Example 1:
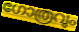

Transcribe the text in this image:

ഗോത്രവും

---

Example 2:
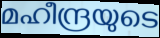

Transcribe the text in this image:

മഹീന്ദ്രയുടെ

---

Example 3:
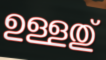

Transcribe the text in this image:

ഉള്ളതു്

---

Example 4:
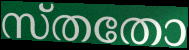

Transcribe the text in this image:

സ്തതോ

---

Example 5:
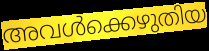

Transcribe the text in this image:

അവൾക്കെഴുതിയ